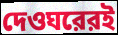
দেওঘরেরই